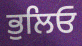
ਭੁਲਿਓ